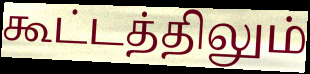
கூட்டத்திலும்